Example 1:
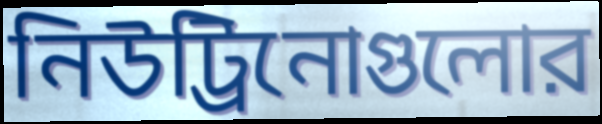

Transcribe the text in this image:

নিউট্রিনোগুলোর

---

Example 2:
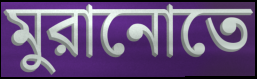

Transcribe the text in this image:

মুরানোতে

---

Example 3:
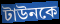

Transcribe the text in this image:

টাউনকে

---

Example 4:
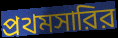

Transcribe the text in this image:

প্রথমসারির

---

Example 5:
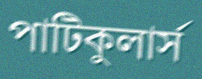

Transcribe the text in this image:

পাটিকুলার্স